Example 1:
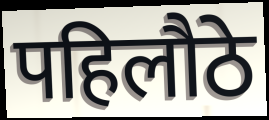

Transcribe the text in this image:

पहिलौठे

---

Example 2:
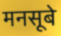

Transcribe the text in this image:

मनसूबे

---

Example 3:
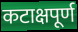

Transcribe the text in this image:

कटाक्षपूर्ण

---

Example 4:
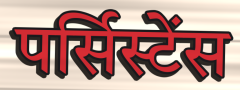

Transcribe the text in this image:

पर्सिस्टेंस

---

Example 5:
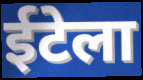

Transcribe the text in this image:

ईटेला